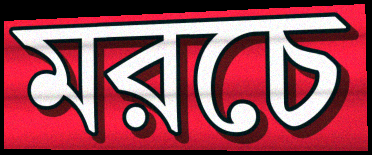
মরচে